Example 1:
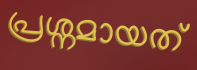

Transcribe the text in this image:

പ്രശ്നമായത്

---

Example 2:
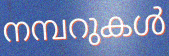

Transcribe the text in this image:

നമ്പറുകൾ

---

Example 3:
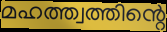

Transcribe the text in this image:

മഹത്ത്വത്തിന്റെ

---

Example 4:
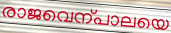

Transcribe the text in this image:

രാജവെന്പാലയെ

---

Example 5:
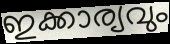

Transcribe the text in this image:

ഇക്കാര്യവും